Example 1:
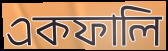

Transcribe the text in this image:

একফালি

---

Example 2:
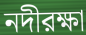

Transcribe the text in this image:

নদীরক্ষা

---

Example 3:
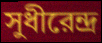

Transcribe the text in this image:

সুধীরেন্দ্র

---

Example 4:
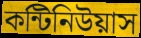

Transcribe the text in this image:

কন্টিনিউয়াস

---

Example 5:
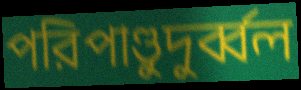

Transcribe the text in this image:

পরিপাণ্ডুদুর্ব্বল